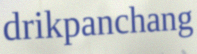
drikpanchang